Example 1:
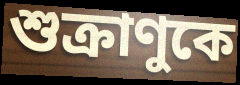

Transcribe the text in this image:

শুক্রাণুকে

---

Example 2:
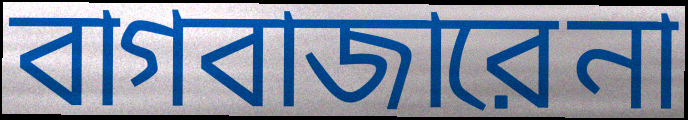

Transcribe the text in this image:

বাগবাজারেনা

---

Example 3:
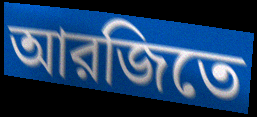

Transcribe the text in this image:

আরজিতে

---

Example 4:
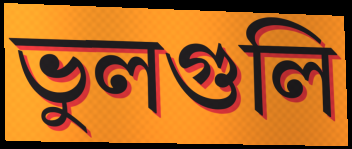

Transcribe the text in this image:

ভুলগুলি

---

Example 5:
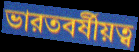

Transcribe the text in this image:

ভারতবর্ষীয়ত্ব